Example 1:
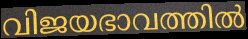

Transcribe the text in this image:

വിജയഭാവത്തിൽ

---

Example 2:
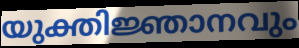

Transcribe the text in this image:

യുക്തിജ്ഞാനവും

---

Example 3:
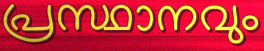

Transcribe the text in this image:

പ്രസ്ഥാനവും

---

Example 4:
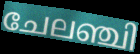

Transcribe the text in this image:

ചേലഞ്ചി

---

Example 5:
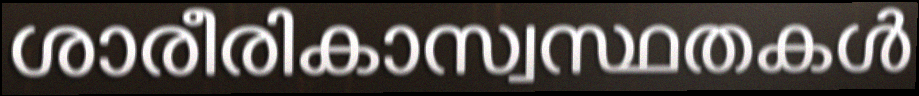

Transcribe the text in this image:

ശാരീരികാസ്വസ്ഥതകൾ